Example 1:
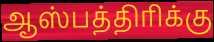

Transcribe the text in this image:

ஆஸ்பத்திரிக்கு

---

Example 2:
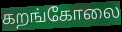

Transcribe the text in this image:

கறங்கோலை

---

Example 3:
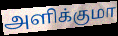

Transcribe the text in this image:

அளிக்குமா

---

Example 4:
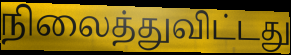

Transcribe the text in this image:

நிலைத்துவிட்டது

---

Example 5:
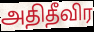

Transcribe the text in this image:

அதிதீவிர